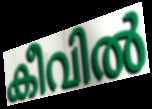
കീവിൽ